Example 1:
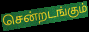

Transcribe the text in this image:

சென்றடங்கும்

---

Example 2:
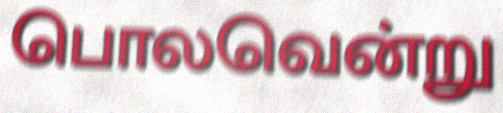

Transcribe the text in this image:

பொலவென்று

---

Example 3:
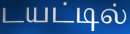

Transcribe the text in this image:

டயட்டில்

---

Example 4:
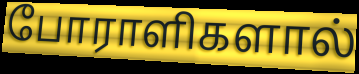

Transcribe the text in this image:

போராளிகளால்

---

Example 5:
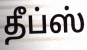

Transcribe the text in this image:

தீப்ஸ்